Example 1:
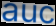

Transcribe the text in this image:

auc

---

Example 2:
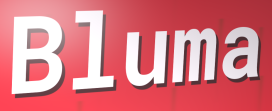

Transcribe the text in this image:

Bluma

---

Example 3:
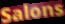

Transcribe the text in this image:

Salons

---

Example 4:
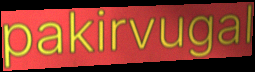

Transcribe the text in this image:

pakirvugal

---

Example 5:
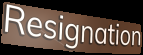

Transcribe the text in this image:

Resignation